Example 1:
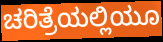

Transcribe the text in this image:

ಚರಿತ್ರೆಯಲ್ಲಿಯೂ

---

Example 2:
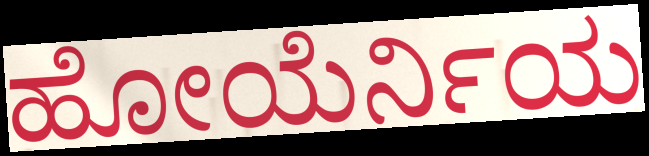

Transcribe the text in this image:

ಹೋಯೆರ್ನಿಯ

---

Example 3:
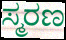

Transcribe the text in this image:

ಸ್ಮರಣ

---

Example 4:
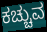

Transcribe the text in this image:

ಕಚ್ಚುವ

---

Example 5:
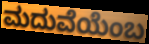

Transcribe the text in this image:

ಮದುವೆಯೆಂಬ